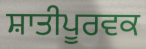
ਸ਼ਾਤੀਪੂਰਵਕ